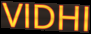
VIDHI